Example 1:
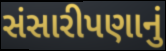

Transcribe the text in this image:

સંસારીપણાનું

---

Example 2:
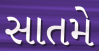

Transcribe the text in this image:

સાતમે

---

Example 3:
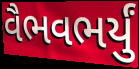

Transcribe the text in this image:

વૈભવભર્યું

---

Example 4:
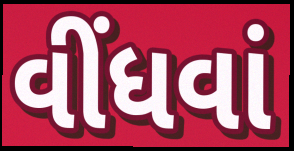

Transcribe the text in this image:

વીંધવાં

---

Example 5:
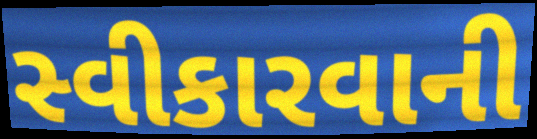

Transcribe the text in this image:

સ્વીકારવાની